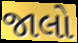
જાલો